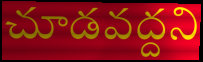
చూడవద్దని